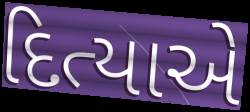
દિત્યાએ